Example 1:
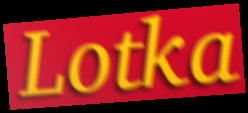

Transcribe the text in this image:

Lotka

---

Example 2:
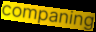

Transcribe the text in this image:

companing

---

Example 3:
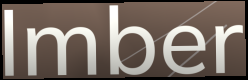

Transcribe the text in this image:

Imber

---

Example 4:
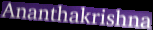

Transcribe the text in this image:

Ananthakrishna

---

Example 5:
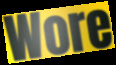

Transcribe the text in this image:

Wore